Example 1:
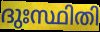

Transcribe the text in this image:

ദുഃസ്ഥിതി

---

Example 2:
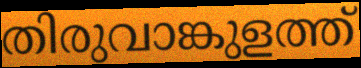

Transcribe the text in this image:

തിരുവാങ്കുളത്ത്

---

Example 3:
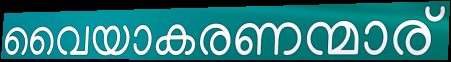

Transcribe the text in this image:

വൈയാകരണന്മാര്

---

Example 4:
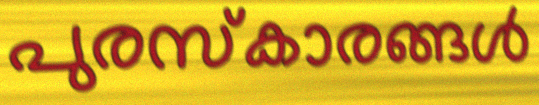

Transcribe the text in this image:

പുരസ്കാരങ്ങൾ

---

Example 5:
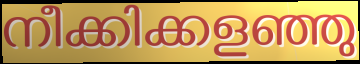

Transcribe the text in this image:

നീക്കിക്കളഞ്ഞു